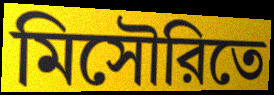
মিসৌরিতে